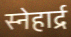
स्नेहार्द्र